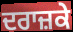
ਦਰਾਜ਼ਕੇ